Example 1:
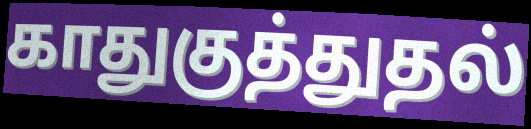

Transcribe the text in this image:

காதுகுத்துதல்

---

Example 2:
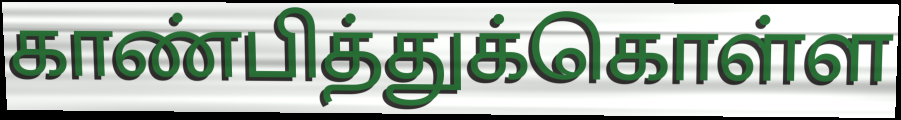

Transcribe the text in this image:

காண்பித்துக்கொள்ள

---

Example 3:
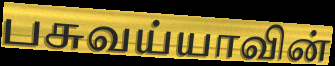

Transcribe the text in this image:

பசுவய்யாவின்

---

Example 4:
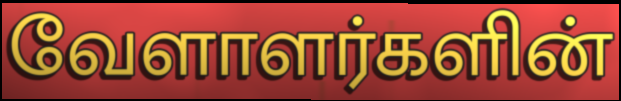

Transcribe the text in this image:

வேளாளர்களின்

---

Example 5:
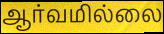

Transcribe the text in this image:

ஆர்வமில்லை